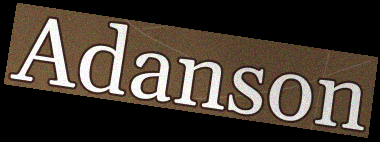
Adanson